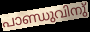
പാണ്ഡുവിനു്